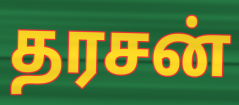
தரசன்